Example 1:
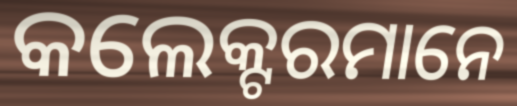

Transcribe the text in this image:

କଲେକ୍ଟରମାନେ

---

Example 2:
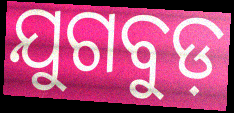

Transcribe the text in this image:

ଯୁଗବୁଡ଼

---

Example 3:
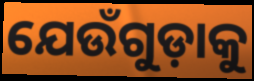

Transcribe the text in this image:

ଯେଉଁଗୁଡ଼ାକୁ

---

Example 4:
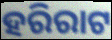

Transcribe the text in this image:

ହରିରାଟ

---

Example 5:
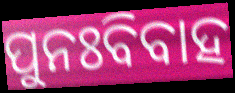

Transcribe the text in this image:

ପୁନଃବିବାହ